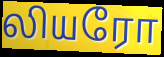
லியரோ